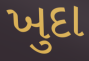
ખુદા